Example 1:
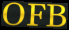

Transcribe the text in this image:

OFB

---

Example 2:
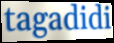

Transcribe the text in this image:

tagadidi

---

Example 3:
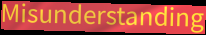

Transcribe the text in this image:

Misunderstanding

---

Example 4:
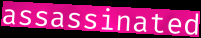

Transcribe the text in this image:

assassinated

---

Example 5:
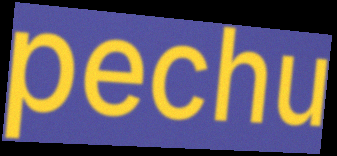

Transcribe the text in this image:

pechu